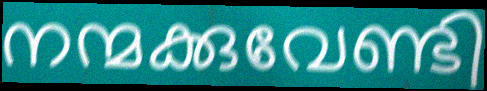
നന്മക്കുവേണ്ടി